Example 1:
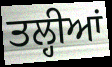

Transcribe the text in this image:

ਤਲ੍ਹੀਆਂ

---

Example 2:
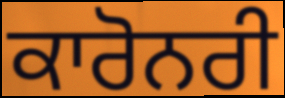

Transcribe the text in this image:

ਕਾਰੋਨਰੀ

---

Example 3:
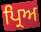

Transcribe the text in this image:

ਪ੍ਰਿਅ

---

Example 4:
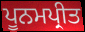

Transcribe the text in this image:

ਪੂਨਮਪ੍ਰੀਤ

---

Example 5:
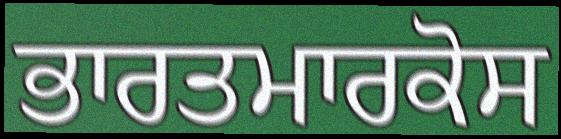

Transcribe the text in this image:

ਭਾਰਤਮਾਰਕੋਸ